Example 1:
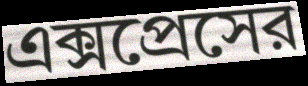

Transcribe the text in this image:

এক্সপ্রেসের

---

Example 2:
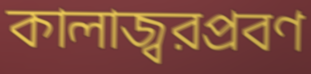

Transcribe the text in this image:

কালাজ্বরপ্রবণ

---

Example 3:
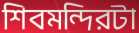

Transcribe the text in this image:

শিবমন্দিরটা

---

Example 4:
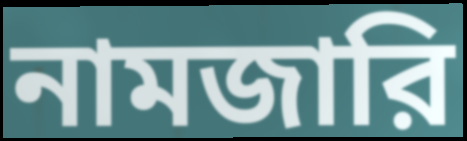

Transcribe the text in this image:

নামজারি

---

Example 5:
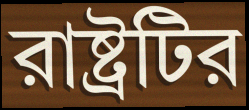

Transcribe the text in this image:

রাষ্ট্রটির